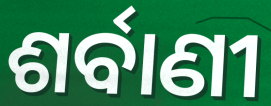
ଶର୍ବାଣୀ